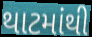
થાટમાંથી